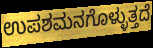
ಉಪಶಮನಗೊಳ್ಳುತ್ತದೆ